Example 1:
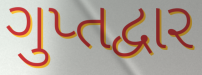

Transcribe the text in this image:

ગુપ્તદ્વાર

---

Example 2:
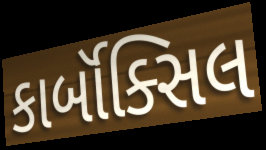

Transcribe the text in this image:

કાર્બૉક્સિલ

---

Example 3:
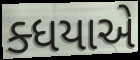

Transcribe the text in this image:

ક્ધયાએ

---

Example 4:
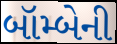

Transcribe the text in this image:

બૉમ્બેની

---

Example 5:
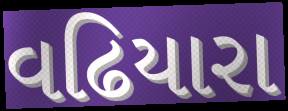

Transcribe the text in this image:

વઢિયારા